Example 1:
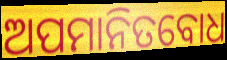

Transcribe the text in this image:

ଅପମାନିତବୋଧ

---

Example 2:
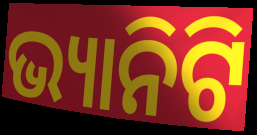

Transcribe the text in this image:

ଭ୍ୟାନିଟି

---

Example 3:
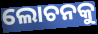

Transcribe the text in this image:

ଲୋଚନକୁ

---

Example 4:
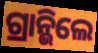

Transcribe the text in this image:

ଗ୍ରାନ୍ଭିଲେ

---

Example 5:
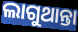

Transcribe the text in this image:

ଲାଗୁଥାନ୍ତା